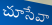
చూసేవా